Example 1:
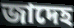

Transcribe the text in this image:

জাদেহ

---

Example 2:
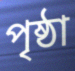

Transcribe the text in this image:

পৃষ্ঠা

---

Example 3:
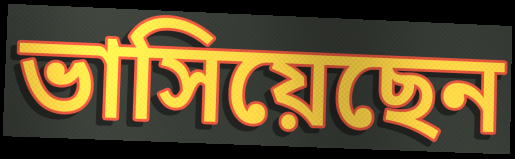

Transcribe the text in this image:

ভাসিয়েছেন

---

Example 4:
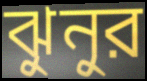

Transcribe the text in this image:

ঝুনুর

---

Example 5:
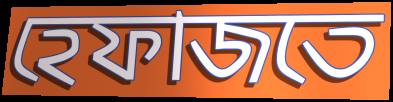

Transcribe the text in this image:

হেফাজতে